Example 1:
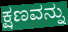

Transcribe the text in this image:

ಕ್ಷಣವನ್ನು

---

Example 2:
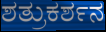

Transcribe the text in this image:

ಶತ್ರುಕರ್ಶನ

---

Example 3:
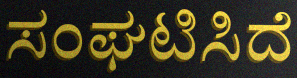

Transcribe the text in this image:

ಸಂಘಟಿಸಿದೆ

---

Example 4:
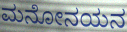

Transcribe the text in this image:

ಮನೋನಯನ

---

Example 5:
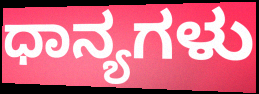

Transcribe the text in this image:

ಧಾನ್ಯಗಳು